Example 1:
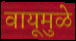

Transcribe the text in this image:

वायूमुळे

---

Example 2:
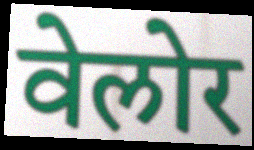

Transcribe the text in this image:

वेलोर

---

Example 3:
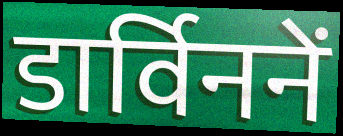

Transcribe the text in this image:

डार्विननें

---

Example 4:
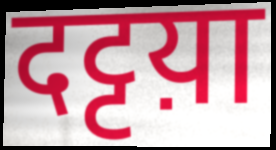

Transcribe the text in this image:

दट्टय़ा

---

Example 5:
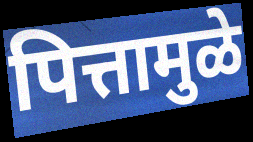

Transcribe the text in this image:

पित्तामुळे